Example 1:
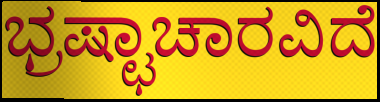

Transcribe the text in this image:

ಭ್ರಷ್ಟಾಚಾರವಿದೆ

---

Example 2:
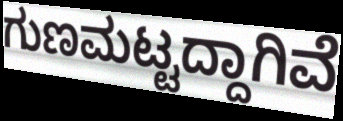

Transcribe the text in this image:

ಗುಣಮಟ್ಟದ್ದಾಗಿವೆ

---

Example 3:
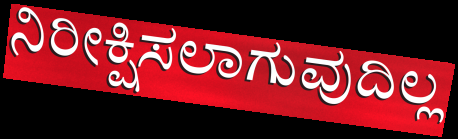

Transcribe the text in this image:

ನಿರೀಕ್ಷಿಸಲಾಗುವುದಿಲ್ಲ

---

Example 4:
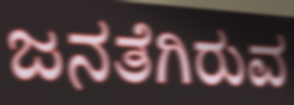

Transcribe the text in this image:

ಜನತೆಗಿರುವ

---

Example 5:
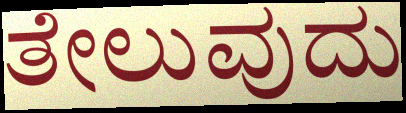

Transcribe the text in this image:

ತೇಲುವುದು